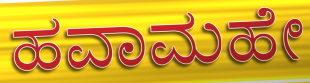
ಹವಾಮಹೇ